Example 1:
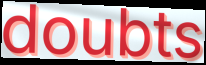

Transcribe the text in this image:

doubts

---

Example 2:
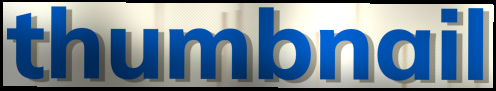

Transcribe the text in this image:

thumbnail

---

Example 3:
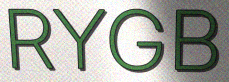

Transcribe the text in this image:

RYGB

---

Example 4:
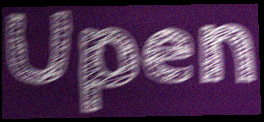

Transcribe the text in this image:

Upen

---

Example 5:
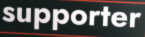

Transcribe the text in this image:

supporter